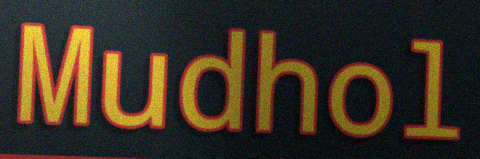
Mudhol